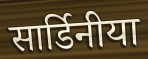
सार्डिनीया